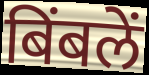
बिंबलें